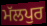
ਮੱਲਪੁਰ